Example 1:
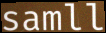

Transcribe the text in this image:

samll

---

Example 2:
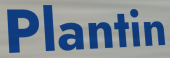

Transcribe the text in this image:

Plantin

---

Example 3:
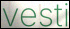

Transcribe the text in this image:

vesti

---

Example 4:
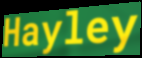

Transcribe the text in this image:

Hayley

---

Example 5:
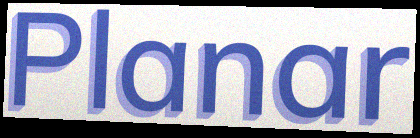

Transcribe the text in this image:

Planar